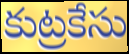
కుట్రకేసు